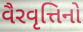
વૈરવૃત્તિનો